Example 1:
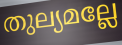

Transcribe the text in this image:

തുല്യമല്ലേ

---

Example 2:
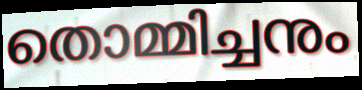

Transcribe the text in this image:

തൊമ്മിച്ചനും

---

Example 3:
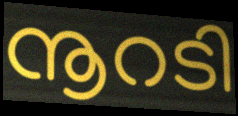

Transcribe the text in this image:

നൂറടി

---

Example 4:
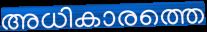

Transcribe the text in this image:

അധികാരത്തെ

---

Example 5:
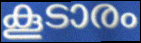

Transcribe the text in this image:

കൂടാരം